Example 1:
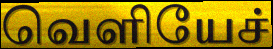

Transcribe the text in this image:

வெளியேச்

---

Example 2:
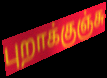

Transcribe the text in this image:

புறாக்குஞ்சு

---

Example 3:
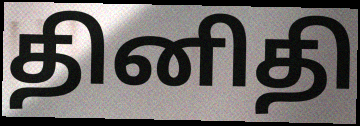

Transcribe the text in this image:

தினிதி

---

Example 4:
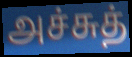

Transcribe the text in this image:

அச்சுத்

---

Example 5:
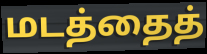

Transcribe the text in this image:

மடத்தைத்